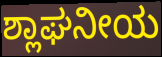
ಶ್ಲಾಘನೀಯ